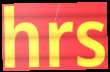
hrs